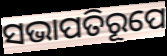
ସଭାପତିରୂପେ